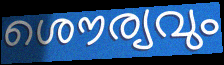
ശൌര്യവും